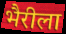
भैरीला